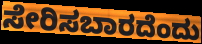
ಸೇರಿಸಬಾರದೆಂದು